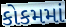
કોકમમાં